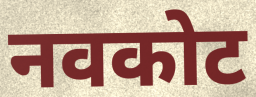
नवकोट